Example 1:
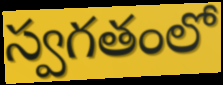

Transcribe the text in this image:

స్వగతంలో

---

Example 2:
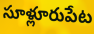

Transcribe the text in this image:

సూళ్లూరుపేట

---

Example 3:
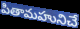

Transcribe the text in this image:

పితామహునిచే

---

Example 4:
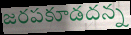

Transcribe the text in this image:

జరపకూడదన్న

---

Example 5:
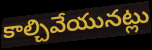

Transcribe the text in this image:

కాల్చివేయునట్లు